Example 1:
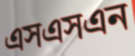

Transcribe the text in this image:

এসএসএন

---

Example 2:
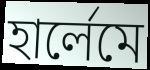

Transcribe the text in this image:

হার্লেমে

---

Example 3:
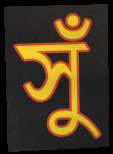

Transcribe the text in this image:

সুঁ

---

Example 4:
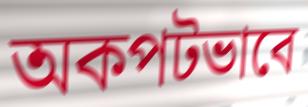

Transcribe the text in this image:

অকপটভাবে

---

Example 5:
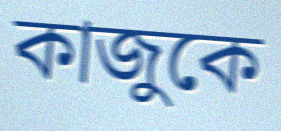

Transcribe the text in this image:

কাজুকে